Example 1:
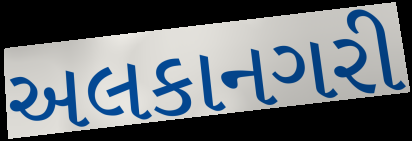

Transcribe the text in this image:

અલકાનગરી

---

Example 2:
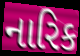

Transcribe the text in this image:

નારિક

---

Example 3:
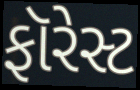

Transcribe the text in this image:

ફૉરેસ્ટ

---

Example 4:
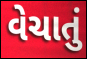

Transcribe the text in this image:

વેચાતું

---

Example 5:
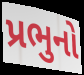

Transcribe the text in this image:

પ્રભુનો